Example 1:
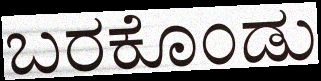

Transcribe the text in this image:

ಬರಕೊಂಡು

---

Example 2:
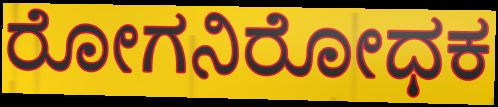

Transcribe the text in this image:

ರೋಗನಿರೋಧಕ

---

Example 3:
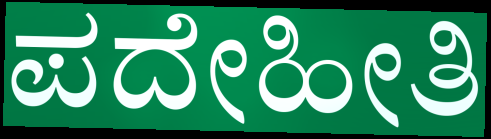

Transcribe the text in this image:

ಪದೇಹೀತಿ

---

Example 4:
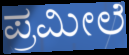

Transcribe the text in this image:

ಪ್ರಮೀಲೆ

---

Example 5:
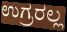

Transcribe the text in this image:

ಉಗ್ರರಲ್ಲ